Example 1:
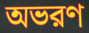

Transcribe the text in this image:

অভরণ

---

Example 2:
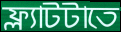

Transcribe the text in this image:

ফ্ল্যাটটাতে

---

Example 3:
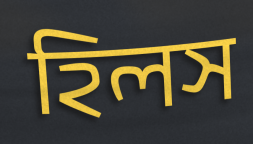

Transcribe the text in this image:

হিলস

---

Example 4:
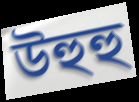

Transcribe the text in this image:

উহুহু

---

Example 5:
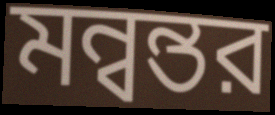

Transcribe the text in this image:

মন্বন্তর